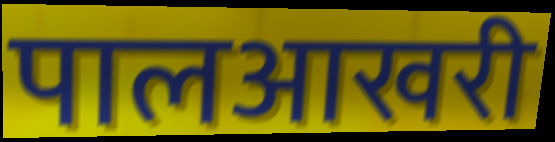
पालआखरी